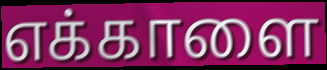
எக்காளை